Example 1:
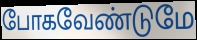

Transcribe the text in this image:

போகவேண்டுமே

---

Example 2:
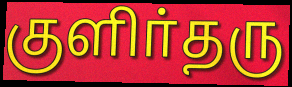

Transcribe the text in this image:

குளிர்தரு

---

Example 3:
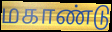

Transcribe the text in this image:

மகாண்டு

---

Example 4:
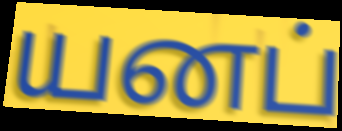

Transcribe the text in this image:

யனப்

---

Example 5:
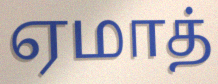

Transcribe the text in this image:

ஏமாத்